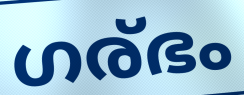
ഗര്ഭം